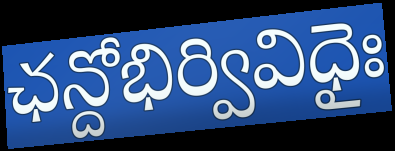
ఛన్దోభిర్వివిధైః